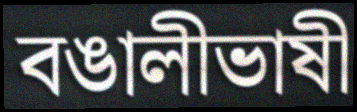
বঙালীভাষী